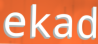
ekad